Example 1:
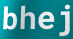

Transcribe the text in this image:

bhej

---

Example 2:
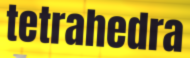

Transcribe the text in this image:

tetrahedra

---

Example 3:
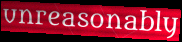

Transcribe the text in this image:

unreasonably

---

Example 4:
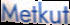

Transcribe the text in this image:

Metkut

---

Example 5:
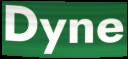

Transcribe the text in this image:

Dyne